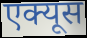
एक्यूस